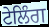
ਟੇਲਿੰਗ